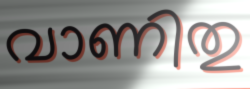
വാണിതു